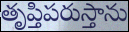
తృప్తిపరుస్తాను